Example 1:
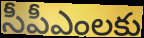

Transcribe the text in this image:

సీపీఎంలకు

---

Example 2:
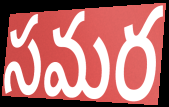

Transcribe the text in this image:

సమర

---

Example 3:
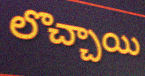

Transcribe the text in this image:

లొచ్చాయి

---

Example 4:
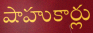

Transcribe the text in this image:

షాహుకార్లు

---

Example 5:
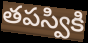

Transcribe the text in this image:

తపస్వికి